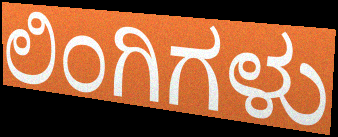
ಲಿಂಗಿಗಳು